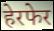
हेरफेर